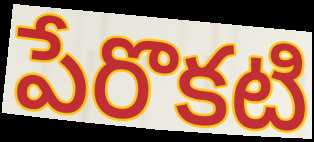
పేరొకటి